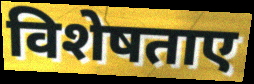
विशेषताए